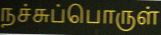
நச்சுப்பொருள்